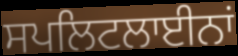
ਸਪਲਿਟਲਾਈਨਾਂ